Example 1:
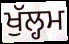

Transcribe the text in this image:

ਖੁੱਲ੍ਹਮ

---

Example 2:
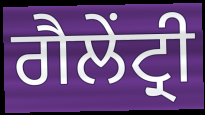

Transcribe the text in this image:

ਗੈਲੇਂਟ੍ਰੀ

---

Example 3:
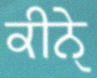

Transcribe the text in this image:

ਕੀਨੇੑ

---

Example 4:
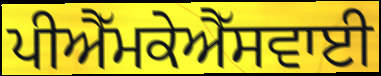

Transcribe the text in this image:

ਪੀਐੱਮਕੇਐੱਸਵਾਈ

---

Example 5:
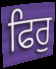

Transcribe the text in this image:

ਫਿਰੁ